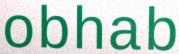
obhab